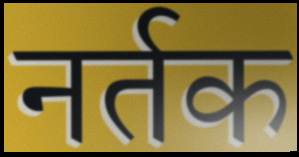
नर्तक